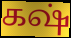
கஷ்